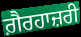
ਗ਼ੈਰਹਾਜ਼ਰੀ